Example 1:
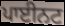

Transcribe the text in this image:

ਪਾਈਨਟ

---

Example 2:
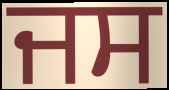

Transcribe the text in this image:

ਜਸ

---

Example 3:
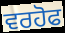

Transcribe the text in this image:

ਵਰਹੋਫ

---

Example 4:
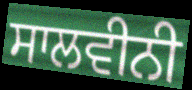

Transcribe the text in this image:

ਸਾਲਵੀਨੀ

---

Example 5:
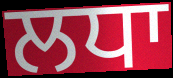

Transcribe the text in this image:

ਲਧਾ